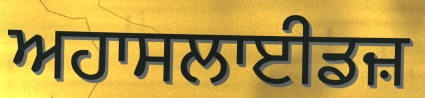
ਅਹਾਸਲਾਈਡਜ਼